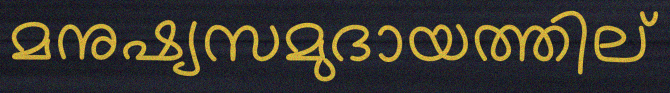
മനുഷ്യസമുദായത്തില്